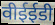
वीईईडी